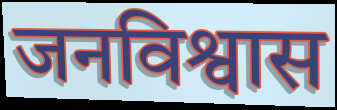
जनविश्वास